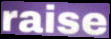
raise